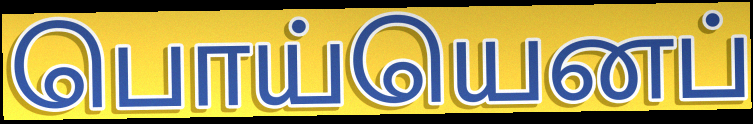
பொய்யெனப்